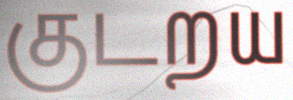
குடறய